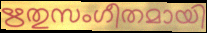
ഋതുസംഗീതമായി